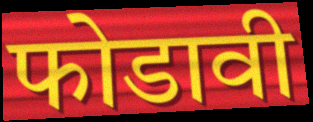
फोडावी